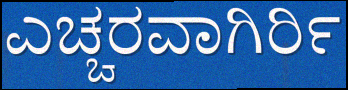
ಎಚ್ಚರವಾಗಿರ್ರಿ